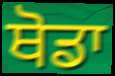
ਥੋਡਾ